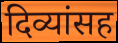
दिव्यांसह